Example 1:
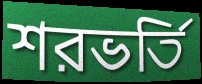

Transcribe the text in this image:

শরভর্তি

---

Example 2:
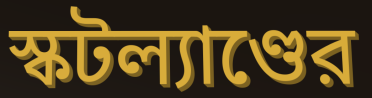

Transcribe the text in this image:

স্কটল্যাণ্ডের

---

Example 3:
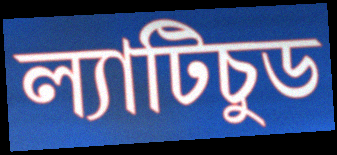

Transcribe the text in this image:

ল্যাটিচুড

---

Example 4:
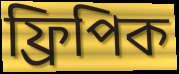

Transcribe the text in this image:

ফ্রিপিক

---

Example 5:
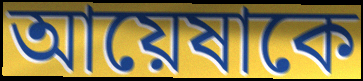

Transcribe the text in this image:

আয়েষাকে